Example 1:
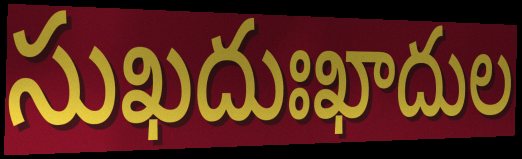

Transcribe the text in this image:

సుఖదుఃఖాదుల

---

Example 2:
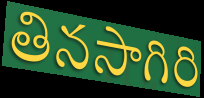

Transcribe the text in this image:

తినసాగిరి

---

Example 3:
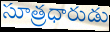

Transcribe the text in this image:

సూత్రధారుడు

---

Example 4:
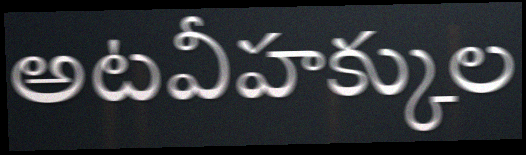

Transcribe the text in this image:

అటవీహక్కుల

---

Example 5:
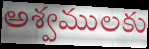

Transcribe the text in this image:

అశ్వములకు